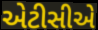
એટીસીએ